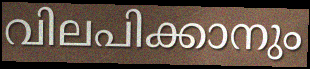
വിലപിക്കാനും